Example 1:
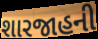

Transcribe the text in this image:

શારજાહની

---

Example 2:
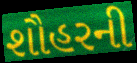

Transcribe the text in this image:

શૌહરની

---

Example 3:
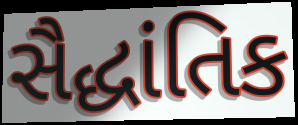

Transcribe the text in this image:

સૈદ્ધાંતિક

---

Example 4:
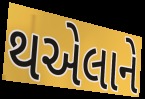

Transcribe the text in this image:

થએલાને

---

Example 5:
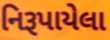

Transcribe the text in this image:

નિરૂપાયેલા